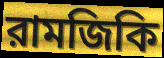
রামজিকি